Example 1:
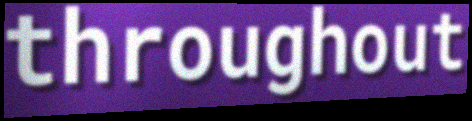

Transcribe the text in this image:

throughout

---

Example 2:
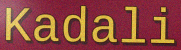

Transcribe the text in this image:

Kadali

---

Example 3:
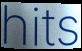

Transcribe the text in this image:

hits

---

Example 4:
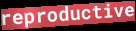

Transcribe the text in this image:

reproductive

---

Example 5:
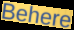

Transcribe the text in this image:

Behere